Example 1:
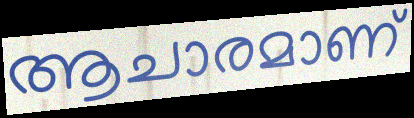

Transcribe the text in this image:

ആചാരമാണ്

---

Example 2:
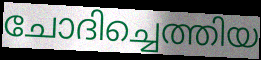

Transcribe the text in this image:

ചോദിച്ചെത്തിയ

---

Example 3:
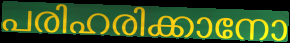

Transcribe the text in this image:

പരിഹരിക്കാനോ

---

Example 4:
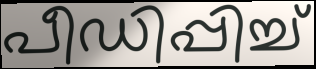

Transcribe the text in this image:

പീഡിപ്പിച്ച്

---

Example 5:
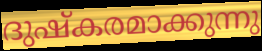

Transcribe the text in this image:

ദുഷ്കരമാക്കുന്നു